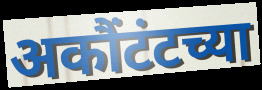
अकौंटंटच्या